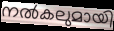
നൽകലുമായി